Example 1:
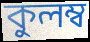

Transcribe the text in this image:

কুলম্ব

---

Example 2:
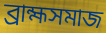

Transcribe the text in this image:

ব্রাহ্মসমাজ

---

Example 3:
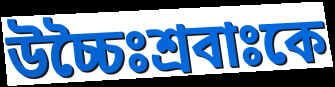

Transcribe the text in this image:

উচ্চৈঃশ্রবাঃকে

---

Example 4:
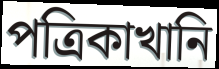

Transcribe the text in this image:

পত্রিকাখানি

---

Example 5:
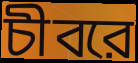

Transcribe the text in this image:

চীবরে